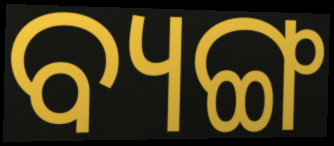
ବ୍ୟଙ୍ଗ